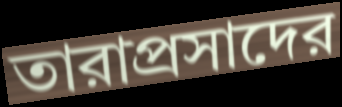
তারাপ্রসাদের